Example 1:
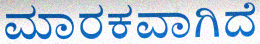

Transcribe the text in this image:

ಮಾರಕವಾಗಿದೆ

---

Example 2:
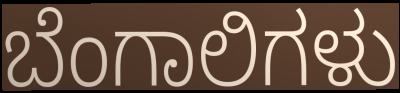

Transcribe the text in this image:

ಬೆಂಗಾಲಿಗಳು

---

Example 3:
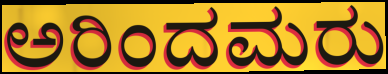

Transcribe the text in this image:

ಅರಿಂದಮರು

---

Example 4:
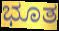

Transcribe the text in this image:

ಭೂತ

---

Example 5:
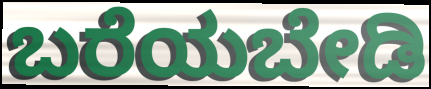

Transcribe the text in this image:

ಬರೆಯಬೇಡಿ